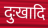
दुःखादि